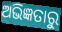
ଅଭିଜ୍ଞତାରୁ